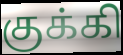
குக்கி